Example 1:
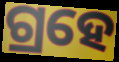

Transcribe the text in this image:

ଗ୍ରହେ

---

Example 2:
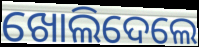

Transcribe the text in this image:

ଖୋଲିଦେଲେ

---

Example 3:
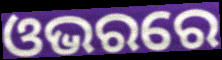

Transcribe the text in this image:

ଓଭରରେ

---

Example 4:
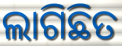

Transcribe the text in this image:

ଲାଗିଛିତ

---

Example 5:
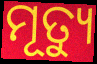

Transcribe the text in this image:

ମୂତ୍ୟୁ